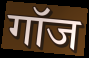
गॉज